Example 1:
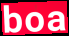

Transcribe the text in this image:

boa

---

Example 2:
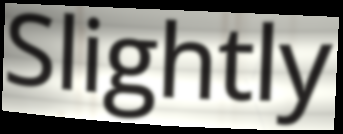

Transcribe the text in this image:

Slightly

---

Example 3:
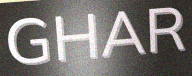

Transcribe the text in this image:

GHAR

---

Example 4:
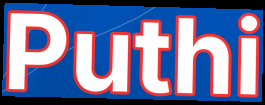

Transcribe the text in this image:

Puthi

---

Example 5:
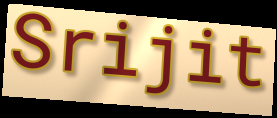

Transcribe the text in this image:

Srijit